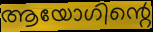
ആയോഗിന്റെ